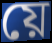
য়ে